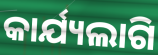
କାର୍ଯ୍ୟଲାଗି